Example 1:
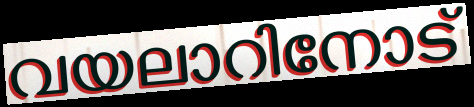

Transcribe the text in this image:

വയലാറിനോട്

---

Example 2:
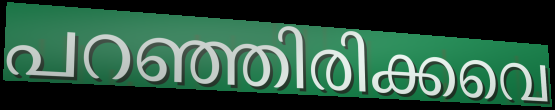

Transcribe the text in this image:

പറഞ്ഞിരിക്കവെ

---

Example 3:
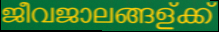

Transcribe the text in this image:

ജീവജാലങ്ങള്ക്ക്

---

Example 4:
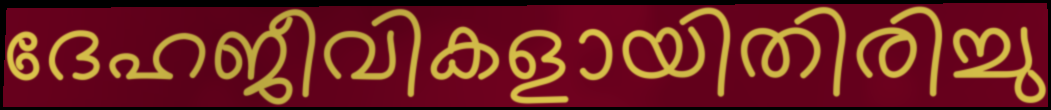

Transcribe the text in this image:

ദേഹജീവികളായിതിരിച്ചു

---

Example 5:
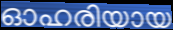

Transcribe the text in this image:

ഓഹരിയായ